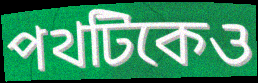
পথটিকেও